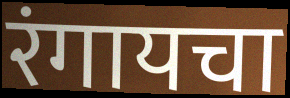
रंगायचा